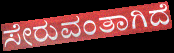
ಸೇರುವಂತಾಗಿದೆ